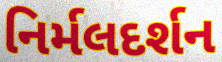
નિર્મલદર્શન